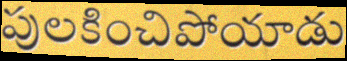
పులకించిపోయాడు